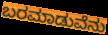
ಬರಮಾಡುವೆನು